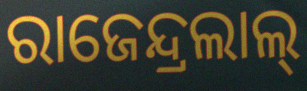
ରାଜେନ୍ଦ୍ରଲାଲ୍